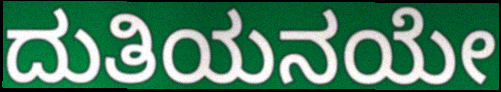
ದುತಿಯನಯೇ